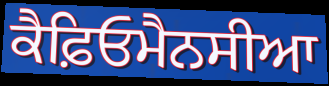
ਕੈਫ਼ਿਓਮੈਨਸੀਆ